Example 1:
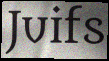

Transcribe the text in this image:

Juifs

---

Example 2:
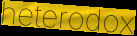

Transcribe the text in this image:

heterodox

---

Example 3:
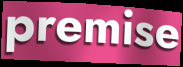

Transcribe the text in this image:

premise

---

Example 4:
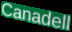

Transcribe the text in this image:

Canadell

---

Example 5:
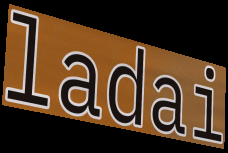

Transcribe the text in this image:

ladai